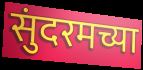
सुंदरमच्या